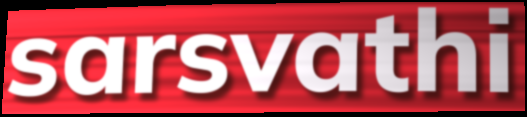
sarsvathi